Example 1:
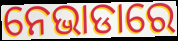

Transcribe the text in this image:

ନେଭାଡାରେ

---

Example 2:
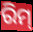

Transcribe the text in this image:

ରିମ୍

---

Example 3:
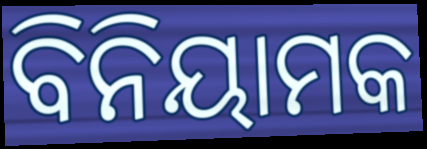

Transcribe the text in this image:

ବିନିୟାମକ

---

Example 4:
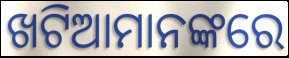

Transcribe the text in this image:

ଖଟିଆମାନଙ୍କରେ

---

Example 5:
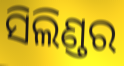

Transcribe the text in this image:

ସିଲିଣ୍ଡର